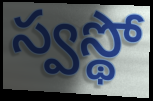
స్వస్థో